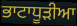
ਭਾਟਾਧੂੜੀਆ